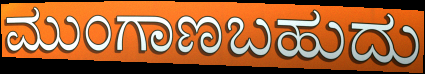
ಮುಂಗಾಣಬಹುದು